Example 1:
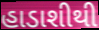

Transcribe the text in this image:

હાડાશીથી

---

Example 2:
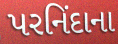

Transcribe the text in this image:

પરનિંદાના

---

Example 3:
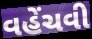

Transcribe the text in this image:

વહેંચવી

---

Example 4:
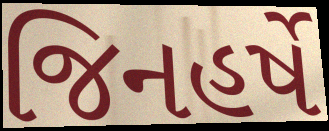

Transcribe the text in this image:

જિનહર્ષે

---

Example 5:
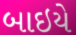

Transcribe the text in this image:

બાઇયે